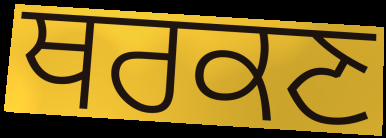
ਥਰਕਣ